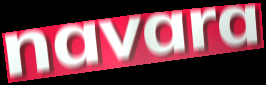
navara